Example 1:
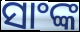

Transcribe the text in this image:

ସାଂଙ୍କ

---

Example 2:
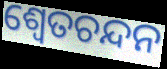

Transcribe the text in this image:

ଶ୍ୱେତଚନ୍ଦନ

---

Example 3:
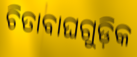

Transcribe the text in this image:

ଚିତାବାଘଗୁଡ଼ିକ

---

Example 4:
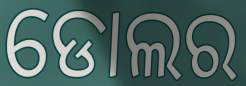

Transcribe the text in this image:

ଡୋଲର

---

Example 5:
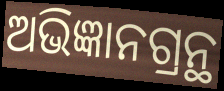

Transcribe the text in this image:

ଅଭିଜ୍ଞାନଗ୍ରନ୍ଥ